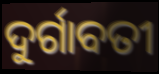
ଦୁର୍ଗାବତୀ